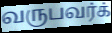
வருபவர்க்